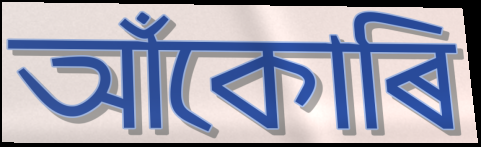
আঁকোৰি